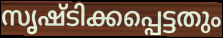
സൃഷ്ടിക്കപ്പെട്ടതും